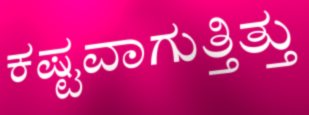
ಕಷ್ಟವಾಗುತ್ತಿತ್ತು